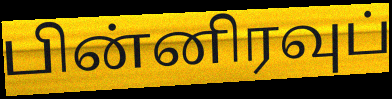
பின்னிரவுப்